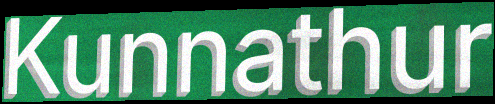
Kunnathur